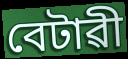
বেটাৱী